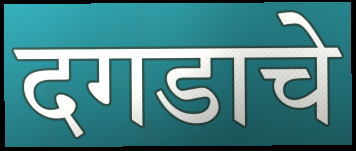
दगडाचे